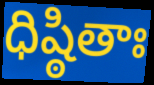
ధిష్ఠితాః